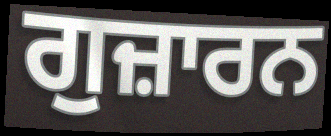
ਗੁਜ਼ਾਰਨ